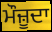
ਮੌਜ਼ੂਦਾ